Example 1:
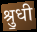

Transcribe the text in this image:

श्रु॒धी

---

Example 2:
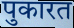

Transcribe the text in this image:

पुकारत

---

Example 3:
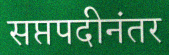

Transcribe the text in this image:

सप्तपदीनंतर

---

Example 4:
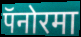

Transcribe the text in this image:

पॅनोरमा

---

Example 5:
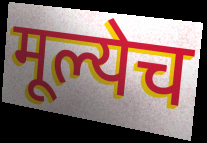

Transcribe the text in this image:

मूल्येच